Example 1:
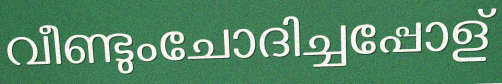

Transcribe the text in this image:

വീണ്ടുംചോദിച്ചപ്പോള്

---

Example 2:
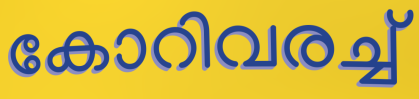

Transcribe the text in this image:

കോറിവരച്ച്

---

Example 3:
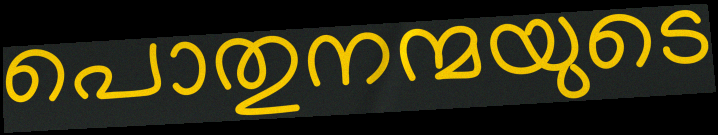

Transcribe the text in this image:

പൊതുനന്മയുടെ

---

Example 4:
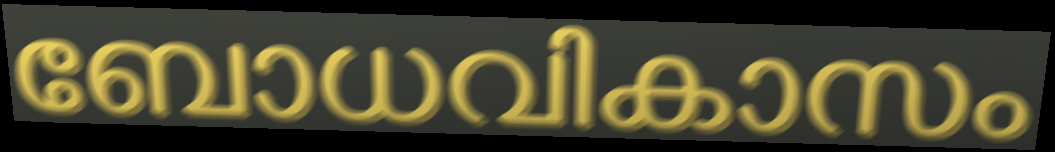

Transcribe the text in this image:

ബോധവികാസം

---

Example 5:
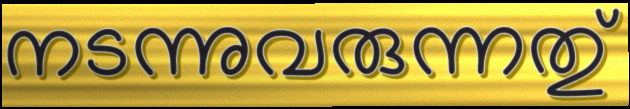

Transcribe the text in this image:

നടന്നുവരുന്നതു്